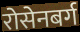
रोसेनबर्ग